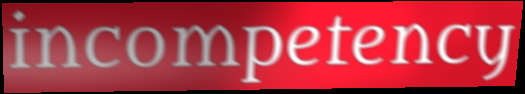
incompetency